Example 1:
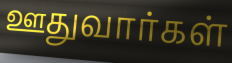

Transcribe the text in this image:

ஊதுவார்கள்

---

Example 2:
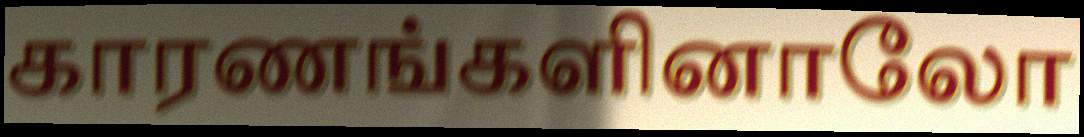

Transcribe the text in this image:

காரணங்களினாலோ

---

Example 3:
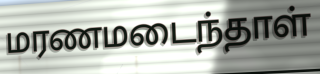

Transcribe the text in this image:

மரணமடைந்தாள்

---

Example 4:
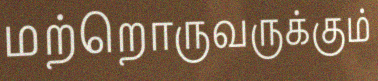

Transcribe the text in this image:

மற்றொருவருக்கும்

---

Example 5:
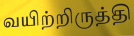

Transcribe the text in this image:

வயிற்றிருத்தி